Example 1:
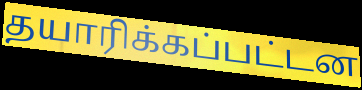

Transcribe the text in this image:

தயாரிக்கப்பட்டன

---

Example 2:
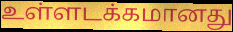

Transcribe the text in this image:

உள்ளடக்கமானது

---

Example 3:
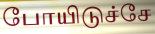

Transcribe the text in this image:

போயிடுச்சே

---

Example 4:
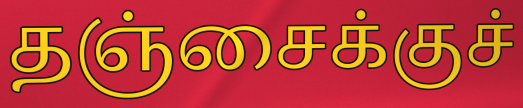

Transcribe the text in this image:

தஞ்சைக்குச்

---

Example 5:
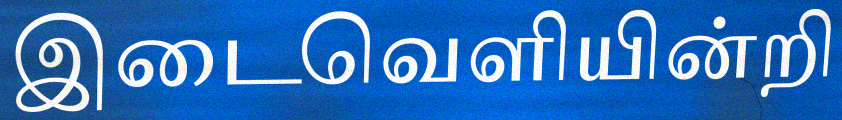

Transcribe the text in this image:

இடைவெளியின்றி